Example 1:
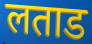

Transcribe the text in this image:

लताड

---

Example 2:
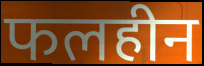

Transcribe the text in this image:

फलहीन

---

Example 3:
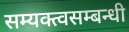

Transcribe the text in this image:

सम्यक्त्वसम्बन्धी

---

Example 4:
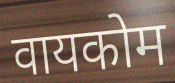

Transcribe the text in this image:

वायकोम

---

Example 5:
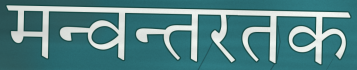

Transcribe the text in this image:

मन्वन्तरतक